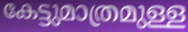
കേട്ടുമാത്രമുള്ള